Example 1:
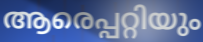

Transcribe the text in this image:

ആരെപ്പറ്റിയും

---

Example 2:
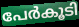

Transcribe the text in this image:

പേർകൂടി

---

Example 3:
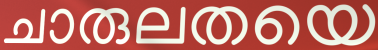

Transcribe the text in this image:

ചാരുലതയെ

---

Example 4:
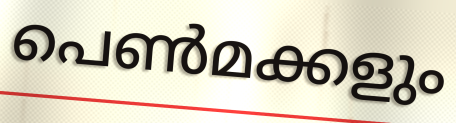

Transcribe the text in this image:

പെൺമക്കളും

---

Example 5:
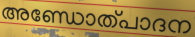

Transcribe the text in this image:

അണ്ഡോത്പാദന